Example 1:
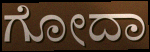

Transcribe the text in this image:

ಗೋದಾ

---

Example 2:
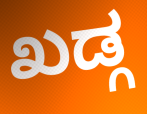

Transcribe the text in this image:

ಖಡ್ಗ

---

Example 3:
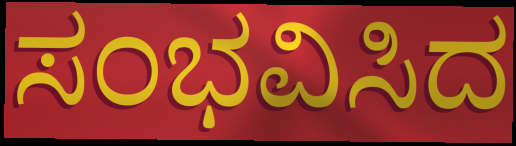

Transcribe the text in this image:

ಸಂಭವಿಸಿದ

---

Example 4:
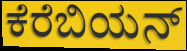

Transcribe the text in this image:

ಕೆರೆಬಿಯನ್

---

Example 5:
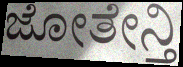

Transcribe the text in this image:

ಜೋತೇನ್ತಿ